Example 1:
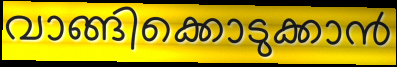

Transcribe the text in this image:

വാങ്ങിക്കൊടുക്കാൻ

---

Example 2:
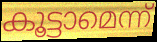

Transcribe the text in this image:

കൂട്ടാമെന്ന്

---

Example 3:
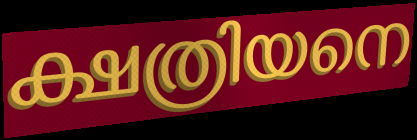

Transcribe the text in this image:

ക്ഷത്രിയനെ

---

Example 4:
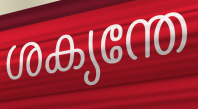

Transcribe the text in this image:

ശക്യന്തേ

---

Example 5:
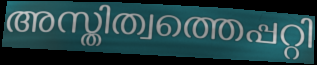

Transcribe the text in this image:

അസ്തിത്വത്തെപ്പറ്റി